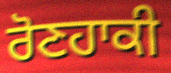
ਰੋਣਹਾਕੀ